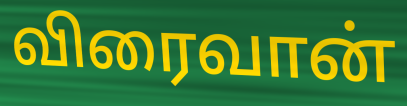
விரைவான்